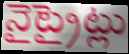
నైట్రైట్లు